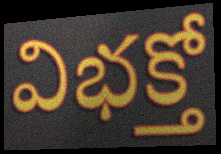
విభక్తో